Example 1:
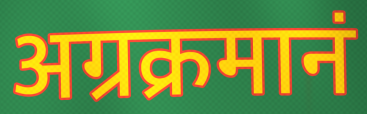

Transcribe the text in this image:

अग्रक्रमानं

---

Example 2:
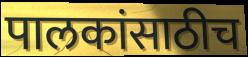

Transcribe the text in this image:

पालकांसाठीच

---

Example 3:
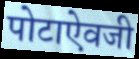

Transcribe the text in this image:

पोटाऐवजी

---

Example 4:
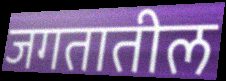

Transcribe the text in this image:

जगतातील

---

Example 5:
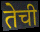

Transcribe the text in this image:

तेची